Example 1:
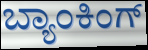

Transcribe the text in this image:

ಬ್ಯಾಂಕಿಂಗ್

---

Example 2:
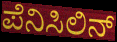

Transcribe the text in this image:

ಪೆನಿಸಿಲಿನ್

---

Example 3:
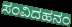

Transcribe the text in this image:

ಸಂವಿದಹನಂ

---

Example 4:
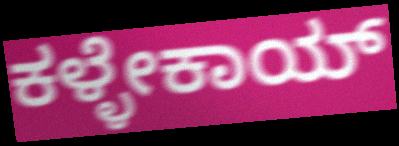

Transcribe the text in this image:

ಕಳ್ಳೇಕಾಯ್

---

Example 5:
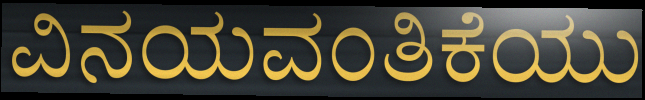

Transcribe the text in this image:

ವಿನಯವಂತಿಕೆಯು